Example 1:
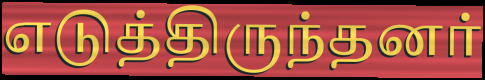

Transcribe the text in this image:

எடுத்திருந்தனர்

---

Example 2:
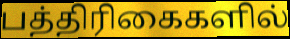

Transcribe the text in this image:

பத்திரிகைகளில்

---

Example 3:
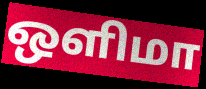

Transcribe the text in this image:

ஒளிமா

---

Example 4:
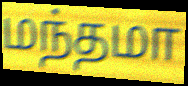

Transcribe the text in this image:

மந்தமா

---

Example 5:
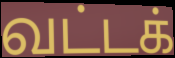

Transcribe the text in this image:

வட்டக்